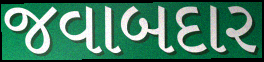
જવાબદાર